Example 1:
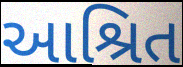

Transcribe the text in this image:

આશ્રિત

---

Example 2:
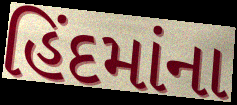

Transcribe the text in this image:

હિંદમાંના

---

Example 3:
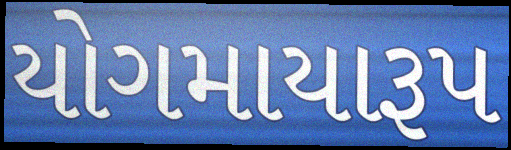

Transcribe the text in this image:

યોગમાયારૂપ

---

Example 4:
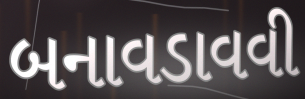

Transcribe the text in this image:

બનાવડાવવી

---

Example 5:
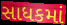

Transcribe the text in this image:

સાધકમાં